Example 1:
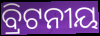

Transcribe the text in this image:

ବ୍ରିଟନୀୟ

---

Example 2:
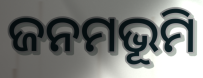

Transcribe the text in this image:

ଜନମଭୂମି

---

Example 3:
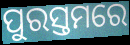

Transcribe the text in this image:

ପୁରସ୍ତମରେ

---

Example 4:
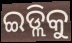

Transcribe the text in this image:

ଇଡ୍ଲିକୁ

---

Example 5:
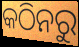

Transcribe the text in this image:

କଠିନରୁ